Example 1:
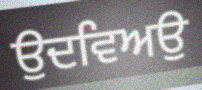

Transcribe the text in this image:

ਉਦਵਿਅਉ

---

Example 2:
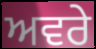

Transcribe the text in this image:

ਅਵਰੇ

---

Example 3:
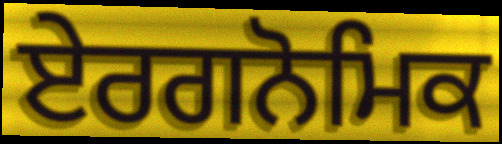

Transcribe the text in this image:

ਏਰਗਨੋਮਿਕ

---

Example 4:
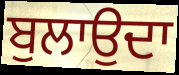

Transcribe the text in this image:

ਬੁਲਾਉਦਾ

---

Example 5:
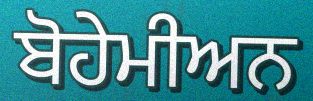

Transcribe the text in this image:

ਬੋਹੇਮੀਅਨ